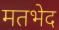
मतभेद